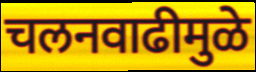
चलनवाढीमुळे